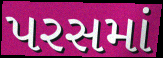
પરસમાં